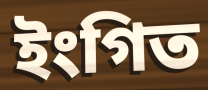
ইংগিত